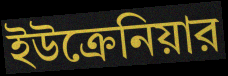
ইউক্রেনিয়ার